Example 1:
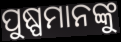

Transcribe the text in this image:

ପୁଷ୍ପମାନଙ୍କୁ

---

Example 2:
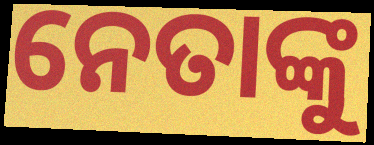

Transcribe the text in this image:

ନେତାଙ୍କୁ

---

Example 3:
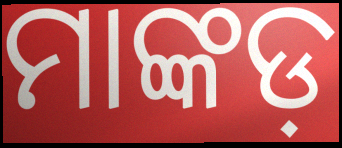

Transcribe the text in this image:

ମାଙ୍କଡ଼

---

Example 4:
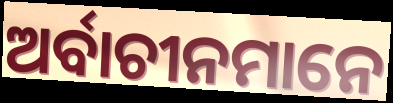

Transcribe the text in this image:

ଅର୍ବାଚୀନମାନେ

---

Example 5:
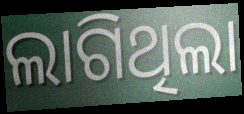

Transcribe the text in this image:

ଲାଗିଥିଲା